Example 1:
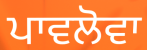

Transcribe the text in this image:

ਪਾਵਲੋਵਾ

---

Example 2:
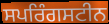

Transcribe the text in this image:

ਸਪਰਿੰਗਸਟੀਨ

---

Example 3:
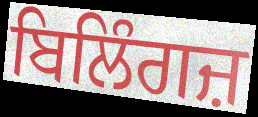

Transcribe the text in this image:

ਬਿਲਿੰਗਜ਼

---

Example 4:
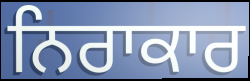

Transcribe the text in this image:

ਨਿਰਾਕਾਰ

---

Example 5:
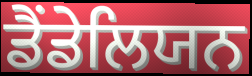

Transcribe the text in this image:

ਡੈਂਡੇਲਿਯਨ